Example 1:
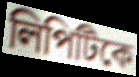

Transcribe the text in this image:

লিপিটিকে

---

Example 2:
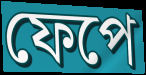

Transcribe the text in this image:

ফেপে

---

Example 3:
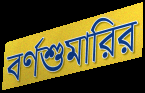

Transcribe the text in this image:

বর্ণশুমারির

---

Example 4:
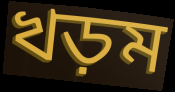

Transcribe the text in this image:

খড়ম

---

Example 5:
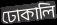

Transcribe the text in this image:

ঢোকালি